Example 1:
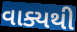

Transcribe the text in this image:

વાક્યથી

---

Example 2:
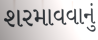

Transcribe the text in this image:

શરમાવવાનું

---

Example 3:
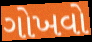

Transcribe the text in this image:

ગોખવો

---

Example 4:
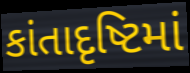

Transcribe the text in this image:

કાંતાદૃષ્ટિમાં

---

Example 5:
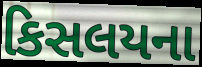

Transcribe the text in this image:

કિસલયના